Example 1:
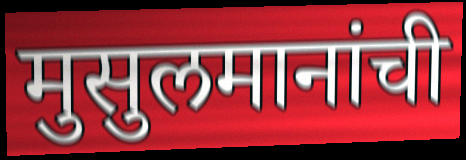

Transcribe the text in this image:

मुसुलमानांची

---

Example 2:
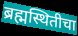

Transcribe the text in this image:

ब्रह्मस्थितीचा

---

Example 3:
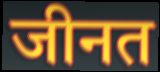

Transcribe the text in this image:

जीनत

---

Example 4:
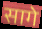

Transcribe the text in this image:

सागे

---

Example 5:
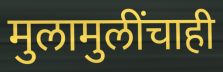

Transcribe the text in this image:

मुलामुलींचाही